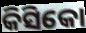
କିସିକୋ